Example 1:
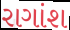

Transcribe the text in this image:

રાગાંશ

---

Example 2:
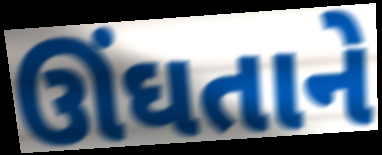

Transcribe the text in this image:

ઊંઘતાને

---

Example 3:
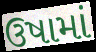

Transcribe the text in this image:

ઉષામાં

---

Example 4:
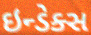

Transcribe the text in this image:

ઇન્ડેક્સ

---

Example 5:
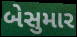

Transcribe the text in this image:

બેસુમાર